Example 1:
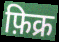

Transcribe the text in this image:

फ़िक्र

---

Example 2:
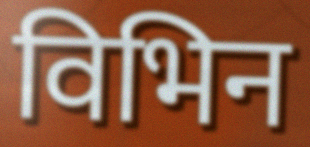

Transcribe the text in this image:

विभिन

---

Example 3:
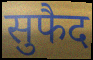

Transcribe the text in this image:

सुफैद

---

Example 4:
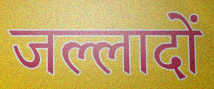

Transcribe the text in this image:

जल्लादों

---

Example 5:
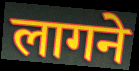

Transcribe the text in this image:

लागने